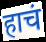
हाचं